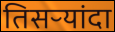
तिसऱ्यांदा